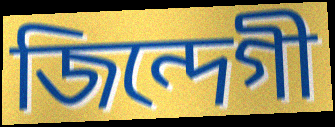
জিন্দেগী